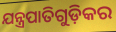
ଯନ୍ତ୍ରପାତିଗୁଡ଼ିକର